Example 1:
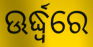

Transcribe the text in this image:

ଊର୍ଦ୍ଧ୍ୱରେ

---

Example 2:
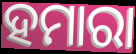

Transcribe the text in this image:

ହମାରା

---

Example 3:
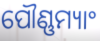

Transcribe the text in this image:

ପୌଣ୍ଣମ୍ୟାଂ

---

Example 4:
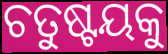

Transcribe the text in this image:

ଚତୁଷ୍ଟୟକୁ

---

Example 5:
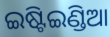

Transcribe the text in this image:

ଇଷ୍ଟିଇଣ୍ଡିଆ